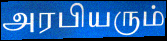
அரபியரும்